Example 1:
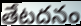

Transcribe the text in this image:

తేటదనం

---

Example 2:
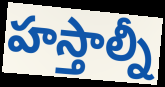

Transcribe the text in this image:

హస్తాల్నీ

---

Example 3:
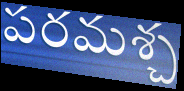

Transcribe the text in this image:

పరమశ్చ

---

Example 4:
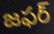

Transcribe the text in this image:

జఫర్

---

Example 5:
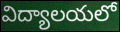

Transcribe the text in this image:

విద్యాలయలో